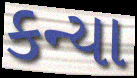
કન્યા